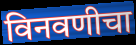
विनवणीचा